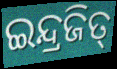
ଇନ୍ଦ୍ରଜିତ୍